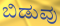
ಬಿಡುವು